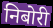
निबोरी